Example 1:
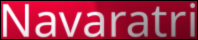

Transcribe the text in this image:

Navaratri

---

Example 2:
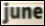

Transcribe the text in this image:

june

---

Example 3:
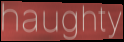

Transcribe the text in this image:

haughty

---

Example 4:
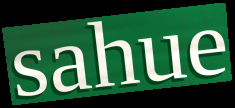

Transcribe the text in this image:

sahue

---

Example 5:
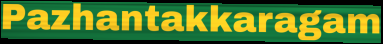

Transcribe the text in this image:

Pazhantakkaragam